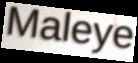
Maleye